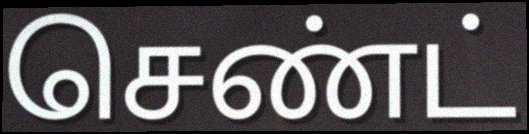
செண்ட்